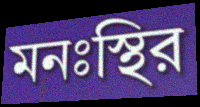
মনঃস্থির